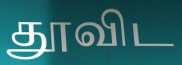
தூவிட